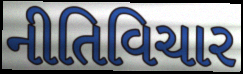
નીતિવિચાર